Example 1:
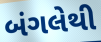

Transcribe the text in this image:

બંગલેથી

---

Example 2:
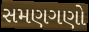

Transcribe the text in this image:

સમણગણો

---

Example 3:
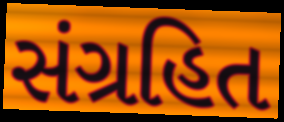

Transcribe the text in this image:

સંગ્રહિત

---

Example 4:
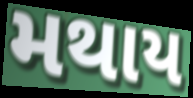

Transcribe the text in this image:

મથાય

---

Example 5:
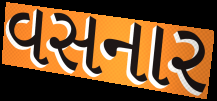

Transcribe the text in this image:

વસનાર